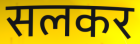
सलकर